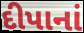
દીપાનાં